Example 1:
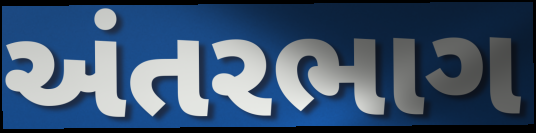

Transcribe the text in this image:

અંતરભાગ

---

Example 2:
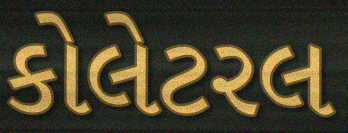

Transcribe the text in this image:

કોલેટરલ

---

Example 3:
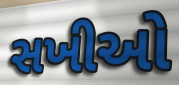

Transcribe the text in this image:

સખીઓ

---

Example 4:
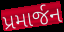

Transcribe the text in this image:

પ્રમાર્જન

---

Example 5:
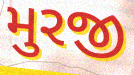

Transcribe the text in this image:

મુરજી